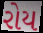
રોય